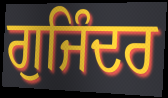
ਗੁਜਿੰਦਰ